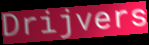
Drijvers